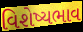
વિશેષ્યભાવ